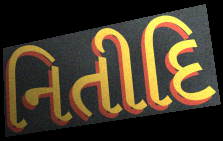
નિતીદિ